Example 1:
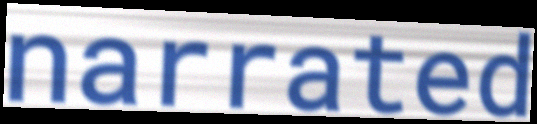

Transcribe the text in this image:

narrated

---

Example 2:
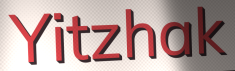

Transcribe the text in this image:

Yitzhak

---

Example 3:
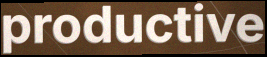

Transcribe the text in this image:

productive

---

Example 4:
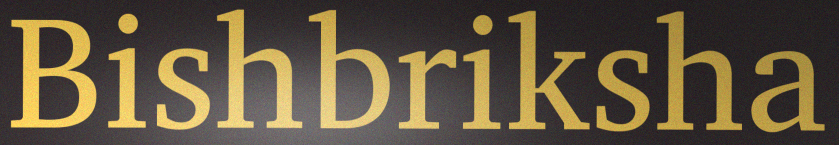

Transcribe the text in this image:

Bishbriksha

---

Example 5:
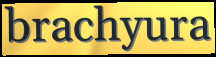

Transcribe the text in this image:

brachyura